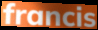
francis